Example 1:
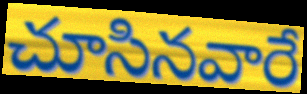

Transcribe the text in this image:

చూసినవారే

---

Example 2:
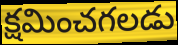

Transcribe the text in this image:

క్షమించగలడు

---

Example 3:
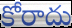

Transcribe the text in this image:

కోరాదు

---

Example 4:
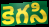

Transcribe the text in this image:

కెగసి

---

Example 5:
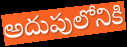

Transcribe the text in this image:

అదుపులోనికి